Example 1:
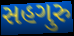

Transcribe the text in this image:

સહગુરુ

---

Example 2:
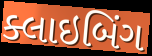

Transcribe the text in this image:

ક્લાઇબિંગ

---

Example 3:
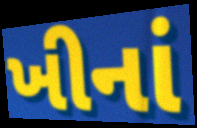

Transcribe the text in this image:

ખીનાં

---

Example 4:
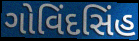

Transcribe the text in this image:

ગોવિંદસિંહ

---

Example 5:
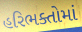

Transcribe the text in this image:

હરિભક્તોમાં